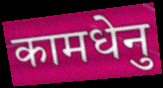
कामधेनु